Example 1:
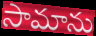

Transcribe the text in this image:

సామాను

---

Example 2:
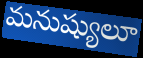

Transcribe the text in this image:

మనుష్యులూ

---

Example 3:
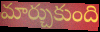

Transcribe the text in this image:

మార్చుకుంది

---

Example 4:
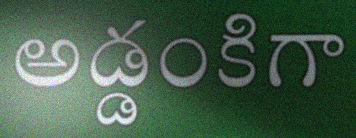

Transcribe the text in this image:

అడ్డంకిగా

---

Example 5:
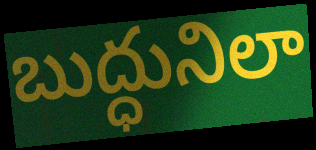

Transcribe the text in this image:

బుద్ధునిలా